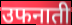
उफनाती